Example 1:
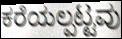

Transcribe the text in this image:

ಕರೆಯಲ್ಪಟ್ಟವು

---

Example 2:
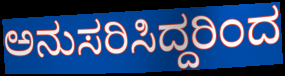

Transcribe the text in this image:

ಅನುಸರಿಸಿದ್ದರಿಂದ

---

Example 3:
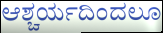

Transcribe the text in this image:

ಆಶ್ಚರ್ಯದಿಂದಲೂ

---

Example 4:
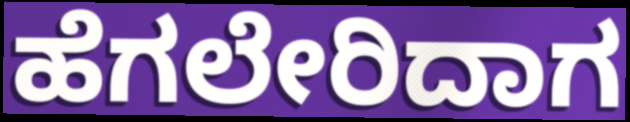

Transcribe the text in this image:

ಹೆಗಲೇರಿದಾಗ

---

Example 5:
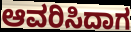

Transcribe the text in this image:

ಆವರಿಸಿದಾಗ